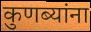
कुणब्यांना